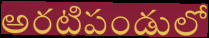
అరటిపండులో